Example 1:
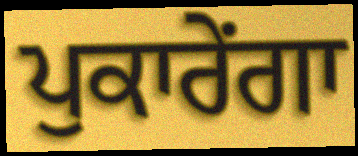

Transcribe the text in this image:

ਪੁਕਾਰੇਂਗਾ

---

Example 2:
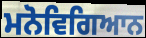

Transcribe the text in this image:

ਮਨੋਵਿਗਿਆਨ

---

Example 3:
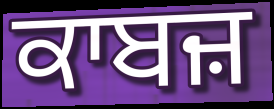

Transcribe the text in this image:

ਕਾਬਜ਼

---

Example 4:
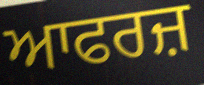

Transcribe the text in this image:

ਆਫਰਜ਼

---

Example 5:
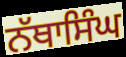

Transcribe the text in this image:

ਨੱਥਾਸਿੰਘ